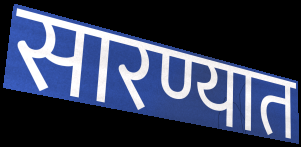
सारण्यात